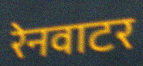
रेनवाटर